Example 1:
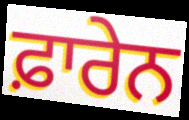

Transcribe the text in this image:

ਫ਼ਾਰੇਨ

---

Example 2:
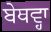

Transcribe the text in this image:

ਬੇਥਵ੍ਹਾ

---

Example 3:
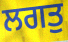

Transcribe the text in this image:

ਲਗਤੁ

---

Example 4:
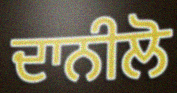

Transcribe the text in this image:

ਦਾਨੀਲੋ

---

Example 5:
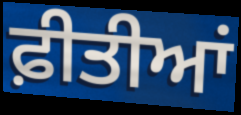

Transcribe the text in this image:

ਫ਼ੀਤੀਆਂ